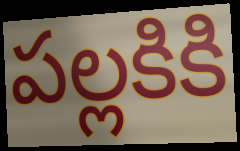
పల్లకికి